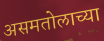
असमतोलाच्या